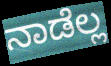
ನಾಡೆಲ್ಲ